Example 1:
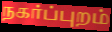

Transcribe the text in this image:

நகர்ப்புறம்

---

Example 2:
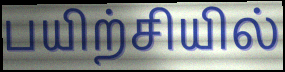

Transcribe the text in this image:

பயிற்சியில்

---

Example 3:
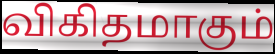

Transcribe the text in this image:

விகிதமாகும்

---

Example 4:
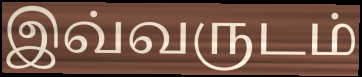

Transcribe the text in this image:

இவ்வருடம்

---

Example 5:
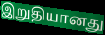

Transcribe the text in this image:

இறுதியானது